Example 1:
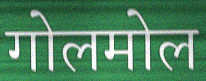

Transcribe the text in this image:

गोलमोल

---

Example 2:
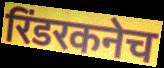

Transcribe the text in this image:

रिंडरकनेच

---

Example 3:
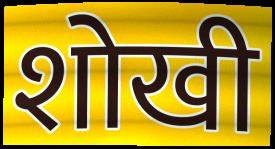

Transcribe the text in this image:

शोखी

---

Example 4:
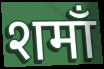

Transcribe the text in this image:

शमाँ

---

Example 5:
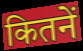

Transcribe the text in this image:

कितनें